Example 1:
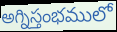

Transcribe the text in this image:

అగ్నిస్తంభములో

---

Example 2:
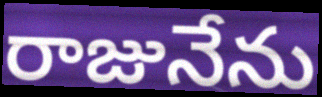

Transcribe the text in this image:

రాజునేను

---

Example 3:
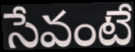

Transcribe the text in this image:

సేవంటే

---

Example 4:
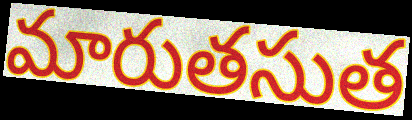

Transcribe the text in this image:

మారుతసుత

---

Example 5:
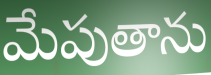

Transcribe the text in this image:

మేపుతాను